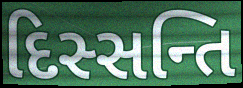
દિસ્સન્તિ